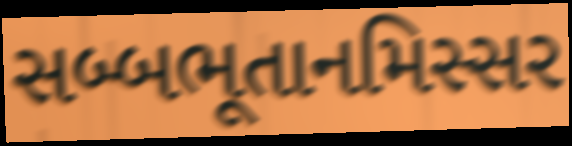
સબ્બભૂતાનમિસ્સર